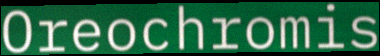
Oreochromis